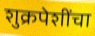
शुक्रपेशींचा